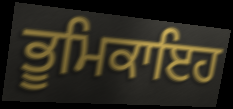
ਭੂਮਿਕਾਇਹ